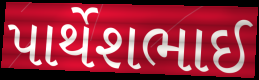
પાર્થેશભાઈ